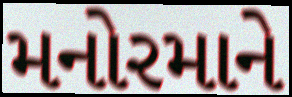
મનોરમાને